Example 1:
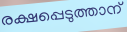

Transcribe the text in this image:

രക്ഷപ്പെടുത്താന്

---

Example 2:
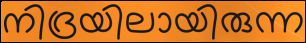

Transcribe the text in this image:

നിദ്രയിലായിരുന്ന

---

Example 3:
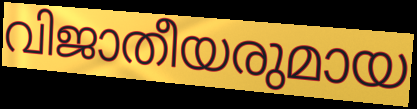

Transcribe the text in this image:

വിജാതീയരുമായ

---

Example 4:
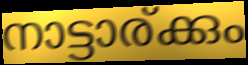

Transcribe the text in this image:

നാട്ടാര്ക്കും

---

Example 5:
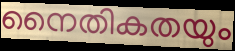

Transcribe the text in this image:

നൈതികതയും